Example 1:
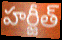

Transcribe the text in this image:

హర్జీత్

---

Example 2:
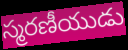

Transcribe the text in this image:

స్మరణీయుడు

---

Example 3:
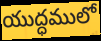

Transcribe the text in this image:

యుద్ధములో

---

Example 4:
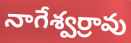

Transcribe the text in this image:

నాగేశ్వర్రావు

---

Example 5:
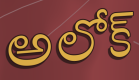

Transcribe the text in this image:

అలోక్